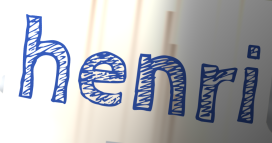
henri